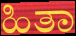
ಹಿತಾ